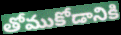
తోముకోడానికి